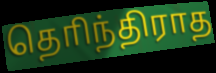
தெரிந்திராத